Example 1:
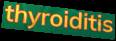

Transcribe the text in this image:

thyroiditis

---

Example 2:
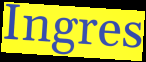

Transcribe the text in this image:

Ingres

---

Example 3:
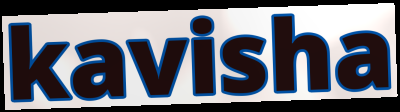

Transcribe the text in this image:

kavisha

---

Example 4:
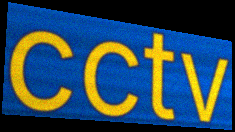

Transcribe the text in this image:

cctv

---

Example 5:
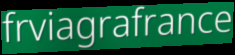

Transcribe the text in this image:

frviagrafrance